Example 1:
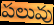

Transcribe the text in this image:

పలువు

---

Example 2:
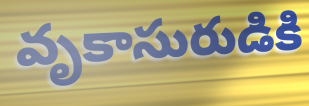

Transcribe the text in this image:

వృకాసురుడికి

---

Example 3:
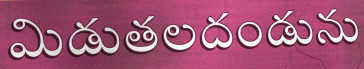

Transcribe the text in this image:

మిడుతలదండును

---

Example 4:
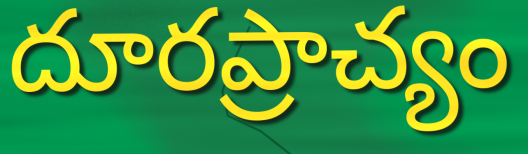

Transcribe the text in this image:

దూరప్రాచ్యం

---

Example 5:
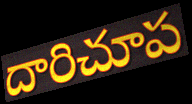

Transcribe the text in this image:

దారిచూప